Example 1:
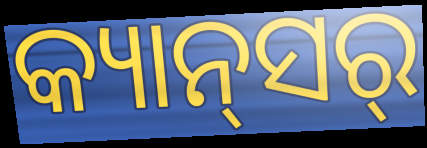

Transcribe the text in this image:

କ୍ୟାନ୍‍ସର୍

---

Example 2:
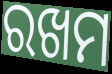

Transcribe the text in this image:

ରଖମ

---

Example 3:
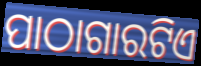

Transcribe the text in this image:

ପାଠାଗାରଟିଏ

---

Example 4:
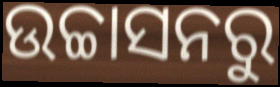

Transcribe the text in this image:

ଉଚ୍ଚାସନରୁ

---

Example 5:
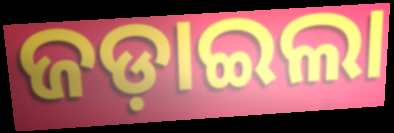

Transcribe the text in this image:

ଜଡ଼ାଇଲା